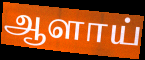
ஆளாய்